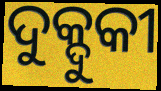
ଦୁକ୍ଦୁକୀ